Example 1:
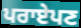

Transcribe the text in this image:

ਪਰਾਏਪਣ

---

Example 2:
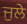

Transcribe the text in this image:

ਜੁਲੇ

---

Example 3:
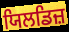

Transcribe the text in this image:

ਯਿਲਡਿਜ਼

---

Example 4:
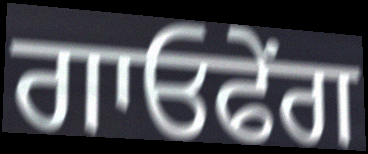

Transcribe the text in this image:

ਗਾਓਫੇਂਗ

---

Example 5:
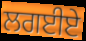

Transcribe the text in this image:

ਲਗਈਏ